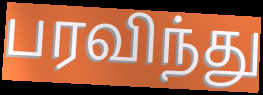
பரவிந்து